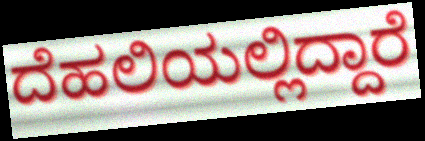
ದೆಹಲಿಯಲ್ಲಿದ್ದಾರೆ